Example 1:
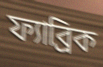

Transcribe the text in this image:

ফ্যাব্রিক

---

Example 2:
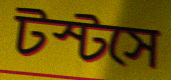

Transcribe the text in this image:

টস্টসে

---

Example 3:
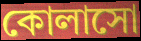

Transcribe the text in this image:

কোলাসো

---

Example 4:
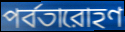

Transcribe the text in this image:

পর্বতারোহণ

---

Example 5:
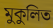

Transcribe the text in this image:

মুকুলিত